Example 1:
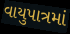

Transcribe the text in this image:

વાયુપાત્રમાં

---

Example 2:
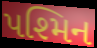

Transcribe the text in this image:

પશ્મિન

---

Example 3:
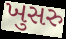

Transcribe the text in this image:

ખુસરુ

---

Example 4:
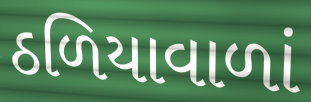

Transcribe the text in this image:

ઠળિયાવાળાં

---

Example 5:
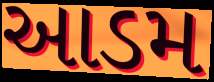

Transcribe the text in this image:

આડમ